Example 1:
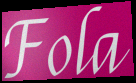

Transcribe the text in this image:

Fola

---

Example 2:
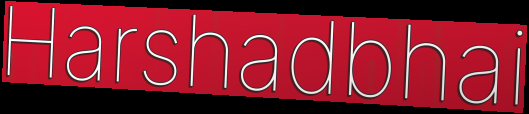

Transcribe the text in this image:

Harshadbhai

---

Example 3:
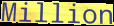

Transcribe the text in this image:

Million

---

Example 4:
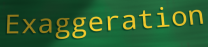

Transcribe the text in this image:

Exaggeration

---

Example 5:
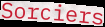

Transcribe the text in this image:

Sorciers